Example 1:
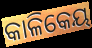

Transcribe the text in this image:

କାଳିକେୟ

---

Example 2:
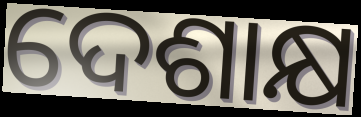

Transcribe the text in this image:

ଦେଶାକ୍ଷ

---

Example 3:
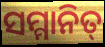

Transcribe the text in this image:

ସମ୍ମାନିତ୍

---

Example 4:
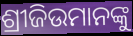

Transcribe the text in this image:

ଶ୍ରୀଜିଉମାନଙ୍କୁ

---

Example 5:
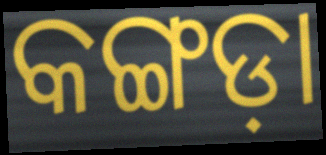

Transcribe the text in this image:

କଙ୍ଗଡ଼ା